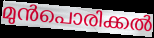
മുൻപൊരിക്കൽ